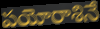
పయోరాశినే